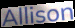
Allison